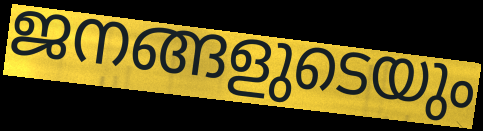
ജനങ്ങളുടെയും